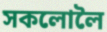
সকলোলৈ